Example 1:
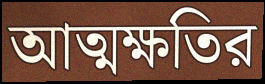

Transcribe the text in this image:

আত্মক্ষতির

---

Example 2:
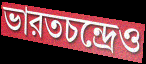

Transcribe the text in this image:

ভারতচন্দ্রেও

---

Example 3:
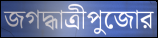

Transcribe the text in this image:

জগদ্ধাত্রীপুজোর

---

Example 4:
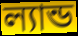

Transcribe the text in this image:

ল্যান্ড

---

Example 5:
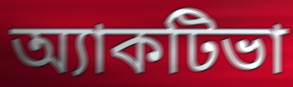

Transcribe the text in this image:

অ্যাকটিভা